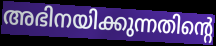
അഭിനയിക്കുന്നതിന്റെ